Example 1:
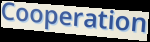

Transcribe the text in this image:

Cooperation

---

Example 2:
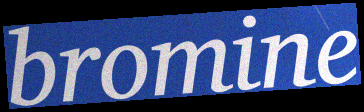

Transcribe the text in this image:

bromine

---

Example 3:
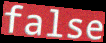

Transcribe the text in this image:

false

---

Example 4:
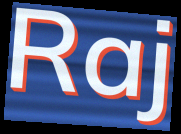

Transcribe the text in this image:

Raj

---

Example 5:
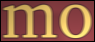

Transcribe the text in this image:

mo